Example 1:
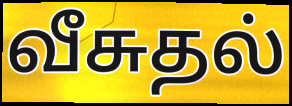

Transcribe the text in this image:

வீசுதல்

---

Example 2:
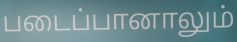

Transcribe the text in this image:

படைப்பானாலும்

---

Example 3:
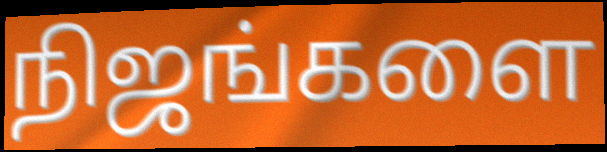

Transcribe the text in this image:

நிஜங்களை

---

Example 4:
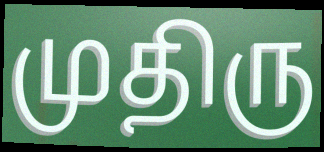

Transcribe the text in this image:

முதிரு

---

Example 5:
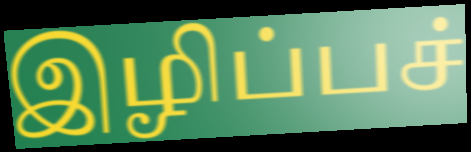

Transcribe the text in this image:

இழிப்பச்